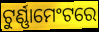
ଟୁର୍ଣ୍ଣାମେଂଟରେ